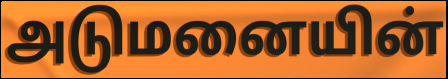
அடுமனையின்